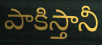
పాకిస్తానీ